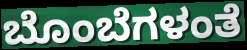
ಬೊಂಬೆಗಳಂತೆ